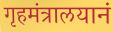
गृहमंत्रालयानं